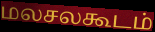
மலசலகூடம்